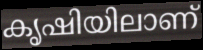
കൃഷിയിലാണ്